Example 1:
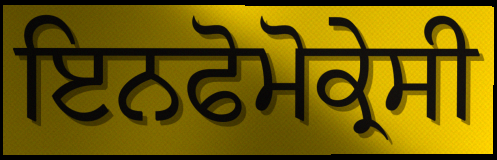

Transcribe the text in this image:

ਇਨਫੋਮੋਕ੍ਰੇਸੀ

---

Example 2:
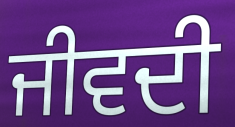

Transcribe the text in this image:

ਜੀਵਦੀ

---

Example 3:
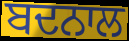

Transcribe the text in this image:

ਬਦਨਾਲ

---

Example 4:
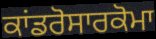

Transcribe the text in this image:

ਕਾਂਡਰੋਸਾਰਕੋਮਾ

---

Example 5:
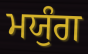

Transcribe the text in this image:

ਮਯੁੰਗ